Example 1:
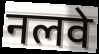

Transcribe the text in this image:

नलवे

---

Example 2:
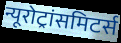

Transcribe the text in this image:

न्यूरोट्रांसमिटर्स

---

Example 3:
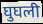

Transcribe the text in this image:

घुघली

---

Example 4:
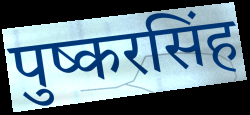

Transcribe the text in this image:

पुष्करसिंह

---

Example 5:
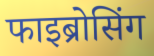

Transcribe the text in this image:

फाइब्रोसिंग